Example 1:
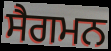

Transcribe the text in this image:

ਸੈਗਮਨ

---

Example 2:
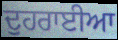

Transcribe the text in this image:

ਦੁਹਰਾਈਆ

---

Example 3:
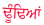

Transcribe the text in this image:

ਢੂੰਢਿਆਂ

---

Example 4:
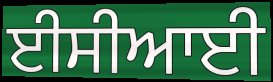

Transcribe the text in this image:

ਈਸੀਆਈ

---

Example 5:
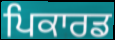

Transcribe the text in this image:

ਪਿਕਾਰਡ